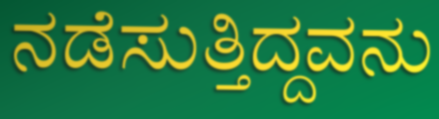
ನಡೆಸುತ್ತಿದ್ದವನು